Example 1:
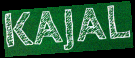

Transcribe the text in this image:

KAJAL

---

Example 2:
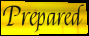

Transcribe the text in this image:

Prepared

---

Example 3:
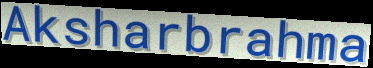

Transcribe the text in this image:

Aksharbrahma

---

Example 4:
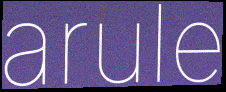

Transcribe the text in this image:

arule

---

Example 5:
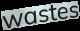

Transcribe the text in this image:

wastes